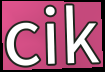
cik